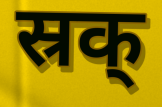
स्रक्